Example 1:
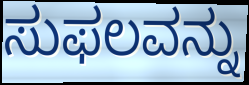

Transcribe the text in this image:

ಸುಫಲವನ್ನು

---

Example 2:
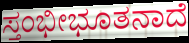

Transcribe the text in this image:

ಸ್ತಂಭೀಭೂತನಾದೆ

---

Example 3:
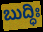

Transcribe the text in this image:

ಬುದ್ಧಿಃ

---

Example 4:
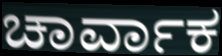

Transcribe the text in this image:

ಚಾರ್ವಾಕ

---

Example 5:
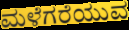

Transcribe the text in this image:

ಮಳೆಗರೆಯುವ